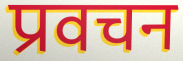
प्रवचन